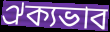
ঐক্যভাব